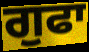
ਗੁਫਾ